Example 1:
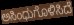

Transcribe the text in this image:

ಅಸಿಂಧುಗೊಳಿಸಿದೆ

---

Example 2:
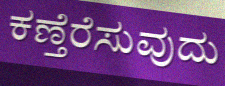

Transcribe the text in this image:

ಕಣ್ತೆರೆಸುವುದು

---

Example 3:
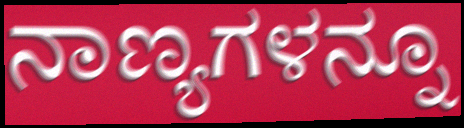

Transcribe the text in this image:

ನಾಣ್ಯಗಳನ್ನೂ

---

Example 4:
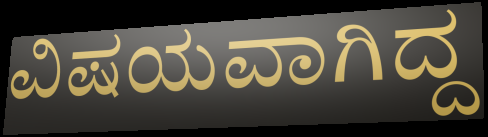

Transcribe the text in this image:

ವಿಷಯವಾಗಿದ್ದ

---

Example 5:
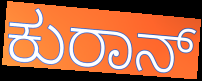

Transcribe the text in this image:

ಕುರಾನ್